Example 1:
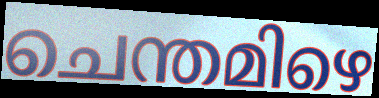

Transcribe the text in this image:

ചെന്തമിഴെ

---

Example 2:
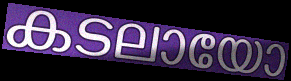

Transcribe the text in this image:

കടലായോ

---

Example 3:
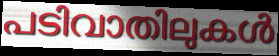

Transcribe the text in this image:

പടിവാതിലുകൾ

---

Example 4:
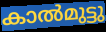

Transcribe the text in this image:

കാൽമുട്ടു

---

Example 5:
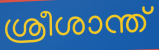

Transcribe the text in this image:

ശ്രീശാന്ത്